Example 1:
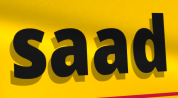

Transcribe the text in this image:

saad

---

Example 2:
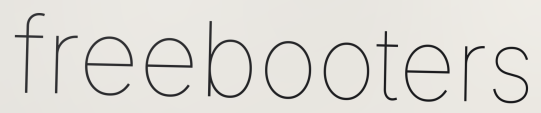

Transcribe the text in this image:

freebooters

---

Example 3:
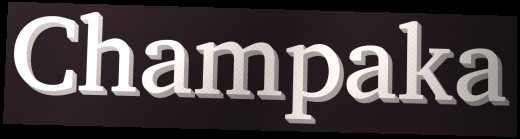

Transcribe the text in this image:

Champaka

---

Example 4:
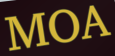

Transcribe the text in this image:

MOA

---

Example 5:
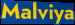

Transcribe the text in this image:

Malviya